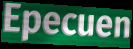
Epecuen